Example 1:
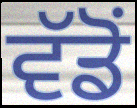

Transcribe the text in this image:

ਵੱਡੋਂ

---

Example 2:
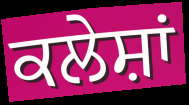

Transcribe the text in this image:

ਕਲੇਸ਼ਾਂ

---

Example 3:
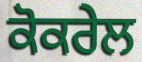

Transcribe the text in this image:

ਕੋਕਰੇਲ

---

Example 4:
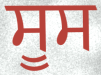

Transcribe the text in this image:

ਸੂਸ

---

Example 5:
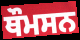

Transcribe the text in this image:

ਥੌਮਸਨ